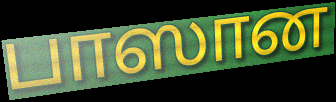
பாஸான